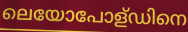
ലെയോപോള്ഡിനെ